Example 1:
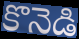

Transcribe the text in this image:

కొనెడి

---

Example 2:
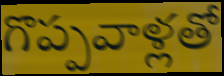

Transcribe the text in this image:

గొప్పవాళ్లతో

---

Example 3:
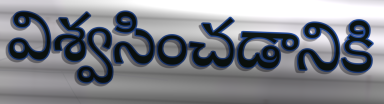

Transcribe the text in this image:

విశ్వసించడానికి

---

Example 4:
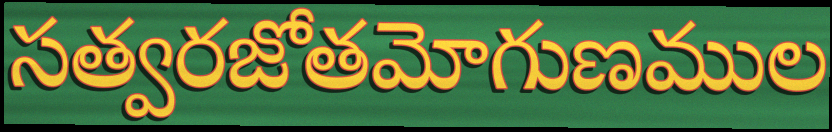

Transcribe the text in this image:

సత్వరజోతమోగుణముల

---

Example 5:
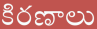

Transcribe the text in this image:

కిరణాలు